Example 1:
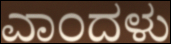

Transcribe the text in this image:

ಎಾಂದಳು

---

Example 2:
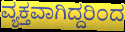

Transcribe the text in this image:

ವ್ಯಕ್ತವಾಗಿದ್ದರಿಂದ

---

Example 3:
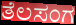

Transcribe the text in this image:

ತೆಲಸಂಗ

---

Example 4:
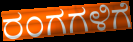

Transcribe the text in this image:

ರಂಗಗಳಿಗೆ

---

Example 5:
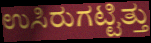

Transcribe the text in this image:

ಉಸಿರುಗಟ್ಟಿತ್ತು